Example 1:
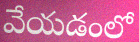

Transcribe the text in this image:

వేయడంలో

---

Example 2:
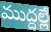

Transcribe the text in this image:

ముద్దల్లే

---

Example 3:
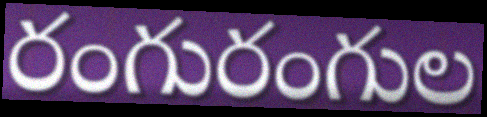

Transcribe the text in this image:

రంగురంగుల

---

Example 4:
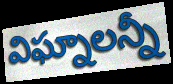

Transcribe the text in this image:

విఘ్నాలన్నీ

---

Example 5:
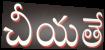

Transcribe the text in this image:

చీయతే